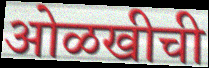
ओळखीची